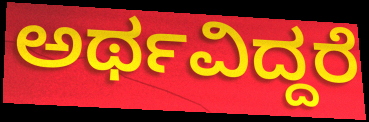
ಅರ್ಥವಿದ್ದರೆ